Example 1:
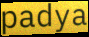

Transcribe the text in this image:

padya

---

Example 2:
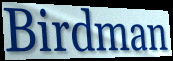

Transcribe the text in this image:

Birdman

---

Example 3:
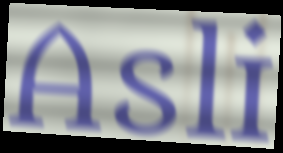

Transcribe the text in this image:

Asli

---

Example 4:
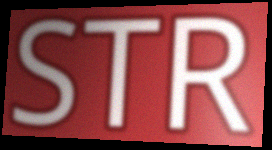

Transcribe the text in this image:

STR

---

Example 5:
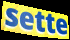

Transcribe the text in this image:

sette